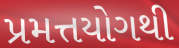
પ્રમત્તયોગથી